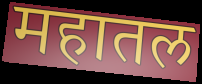
महातल